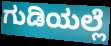
ಗುಡಿಯಲ್ಲೆ